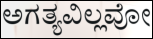
ಅಗತ್ಯವಿಲ್ಲವೋ